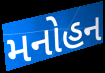
મનોહન